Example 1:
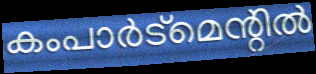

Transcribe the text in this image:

കംപാർട്മെന്റിൽ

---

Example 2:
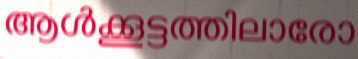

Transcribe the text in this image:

ആൾക്കൂട്ടത്തിലാരോ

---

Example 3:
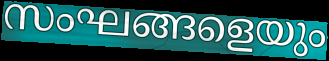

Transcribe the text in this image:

സംഘങ്ങളെയും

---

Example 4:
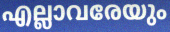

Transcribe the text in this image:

എല്ലാവരേയും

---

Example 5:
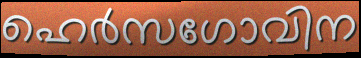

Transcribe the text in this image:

ഹെർസഗോവിന